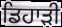
ਡਿਹਾੜੀ